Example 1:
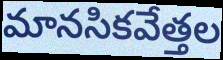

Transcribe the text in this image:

మానసికవేత్తల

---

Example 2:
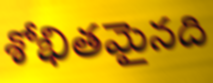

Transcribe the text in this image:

శోభితమైనది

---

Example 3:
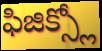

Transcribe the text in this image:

ఫిజిక్స్లో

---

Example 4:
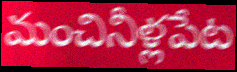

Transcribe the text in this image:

మంచినీళ్లపేట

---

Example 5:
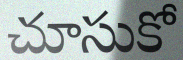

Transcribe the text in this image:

చూసుకో